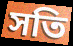
সতি